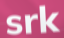
srk